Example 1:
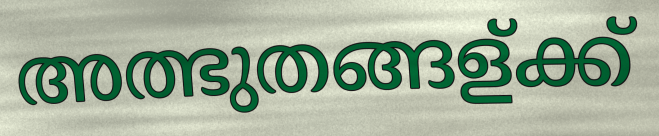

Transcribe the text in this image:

അത്ഭുതങ്ങള്ക്ക്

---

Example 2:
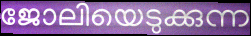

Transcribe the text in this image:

ജോലിയെടുക്കുന്ന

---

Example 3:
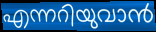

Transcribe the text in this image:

എന്നറിയുവാൻ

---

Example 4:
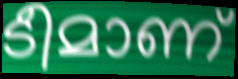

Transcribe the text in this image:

ടീമാണ്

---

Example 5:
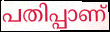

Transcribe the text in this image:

പതിപ്പാണ്